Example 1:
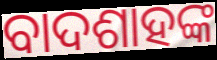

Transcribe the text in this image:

ବାଦଶାହଙ୍କ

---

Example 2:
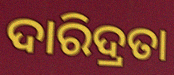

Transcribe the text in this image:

ଦାରିଦ୍ରତା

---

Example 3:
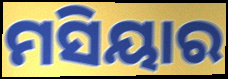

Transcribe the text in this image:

ମସିୟାର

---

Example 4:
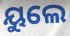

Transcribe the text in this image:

ୟୁଲେ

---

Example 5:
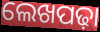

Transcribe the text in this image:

ଲେଖପଢ଼ା